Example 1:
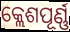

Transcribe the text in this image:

କ୍ଲେଶପୂର୍ଣ୍ଣ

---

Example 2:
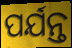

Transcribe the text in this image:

ପର୍ଯନ୍ତ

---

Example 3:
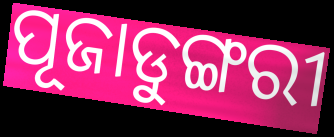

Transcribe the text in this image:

ପୂଜାଡୁଙ୍ଗରୀ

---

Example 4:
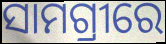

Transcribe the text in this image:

ସାମଗ୍ରୀରେ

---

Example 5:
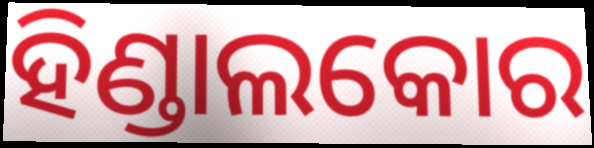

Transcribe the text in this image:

ହିଣ୍ଡାଲକୋର